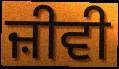
ਜ਼ੀਵੀ